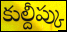
కుల్దీప్కు